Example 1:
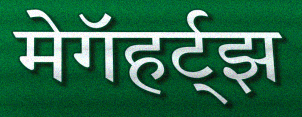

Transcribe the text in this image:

मेगॅहर्ट्झ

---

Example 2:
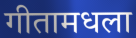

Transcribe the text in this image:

गीतामधला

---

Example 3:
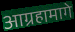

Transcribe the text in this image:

आग्रहामागे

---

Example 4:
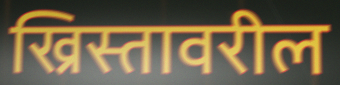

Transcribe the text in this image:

ख्रिस्तावरील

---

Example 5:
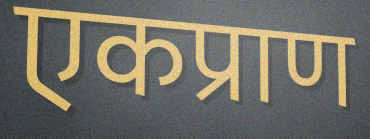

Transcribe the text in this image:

एकप्राण